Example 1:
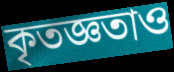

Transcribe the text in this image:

কৃতজ্ঞতাও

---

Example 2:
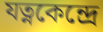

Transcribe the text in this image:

যত্নকেন্দ্রে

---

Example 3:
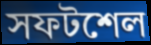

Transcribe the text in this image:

সফটশেল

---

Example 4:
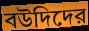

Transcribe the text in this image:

বউদিদের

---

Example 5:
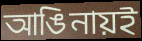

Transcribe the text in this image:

আঙিনায়ই